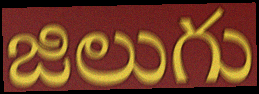
జిలుగు